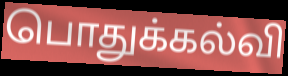
பொதுக்கல்வி